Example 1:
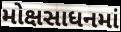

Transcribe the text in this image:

મોક્ષસાધનમાં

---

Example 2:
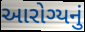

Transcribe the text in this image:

આરોગ્યનું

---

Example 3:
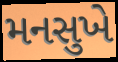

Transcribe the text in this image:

મનસુખે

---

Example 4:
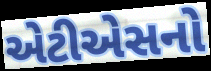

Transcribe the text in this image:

એટીએસનો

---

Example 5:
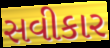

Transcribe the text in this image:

સવીકાર